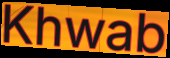
Khwab